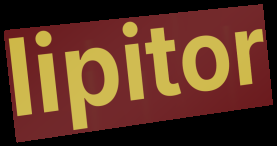
lipitor